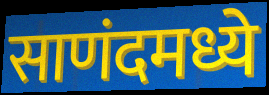
साणंदमध्ये